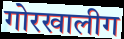
गोरखालीग